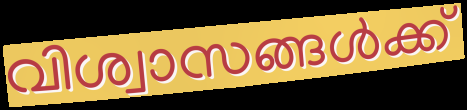
വിശ്വാസങ്ങൾക്ക്